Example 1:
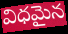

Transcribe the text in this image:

విధమైన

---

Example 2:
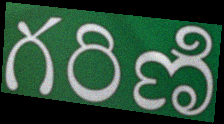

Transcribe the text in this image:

గరిణి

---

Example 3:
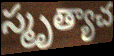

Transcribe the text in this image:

స్మృత్యాచ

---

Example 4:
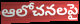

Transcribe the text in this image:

ఆలోచనలపై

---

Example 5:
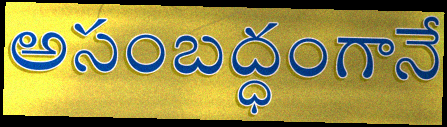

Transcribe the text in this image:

అసంబద్ధంగానే